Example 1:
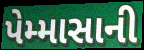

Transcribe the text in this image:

પેમ્માસાની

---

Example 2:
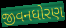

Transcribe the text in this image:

જીવનધોરણ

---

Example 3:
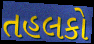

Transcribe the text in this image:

તહલકો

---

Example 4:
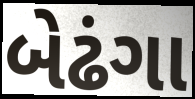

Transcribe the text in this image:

બેઢંગા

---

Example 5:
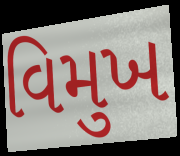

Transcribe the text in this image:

વિમુખ